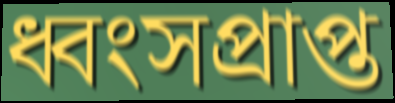
ধ্বংসপ্রাপ্ত